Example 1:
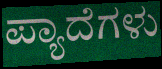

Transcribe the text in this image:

ಪ್ಯಾದೆಗಳು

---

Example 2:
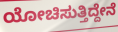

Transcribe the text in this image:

ಯೋಚಿಸುತ್ತಿದ್ದೇನೆ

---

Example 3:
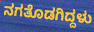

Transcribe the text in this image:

ನಗತೊಡಗಿದ್ದಳು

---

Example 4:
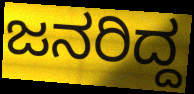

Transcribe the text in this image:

ಜನರಿದ್ದ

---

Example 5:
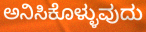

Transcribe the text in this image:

ಅನಿಸಿಕೊಳ್ಳುವುದು